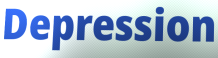
Depression